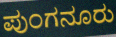
ಪುಂಗನೂರು